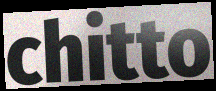
chitto